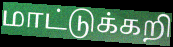
மாட்டுக்கறி